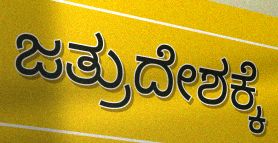
ಜತ್ರುದೇಶಕ್ಕೆ